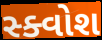
સ્ક્વોશ